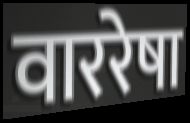
वाररेषा